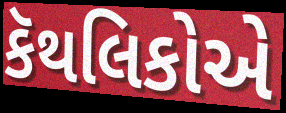
કૅથલિકોએ